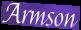
Armson